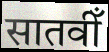
सातवीँ